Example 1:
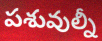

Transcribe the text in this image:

పశువుల్నీ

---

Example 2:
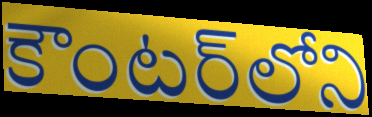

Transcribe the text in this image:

కౌంటర్‌లోని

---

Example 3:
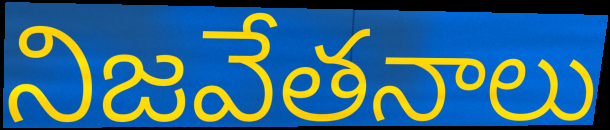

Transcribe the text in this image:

నిజవేతనాలు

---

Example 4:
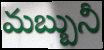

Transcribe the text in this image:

మబ్బునీ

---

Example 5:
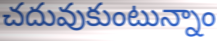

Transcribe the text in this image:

చదువుకుంటున్నాం